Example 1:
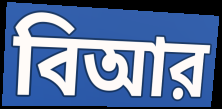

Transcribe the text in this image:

বিআর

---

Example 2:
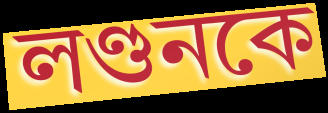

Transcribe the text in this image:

লণ্ডনকে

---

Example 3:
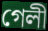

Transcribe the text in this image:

গেলী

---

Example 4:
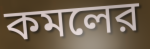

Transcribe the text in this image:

কমলের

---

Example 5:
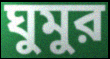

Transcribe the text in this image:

ঘুমুর